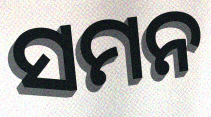
ସମନ